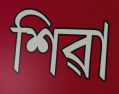
শিৱা